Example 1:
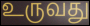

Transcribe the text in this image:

உருவது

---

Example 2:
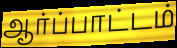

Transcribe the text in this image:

ஆர்ப்பாட்டம்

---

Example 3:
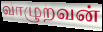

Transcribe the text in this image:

வாழுறவன்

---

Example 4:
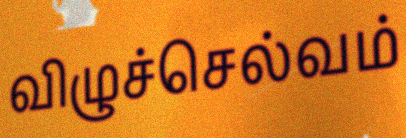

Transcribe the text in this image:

விழுச்செல்வம்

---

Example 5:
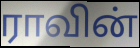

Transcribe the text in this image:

ராவின்